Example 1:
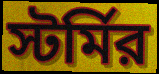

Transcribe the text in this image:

স্টর্মির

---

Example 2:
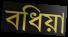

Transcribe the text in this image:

বধিয়া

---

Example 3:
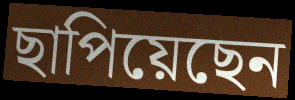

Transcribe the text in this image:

ছাপিয়েছেন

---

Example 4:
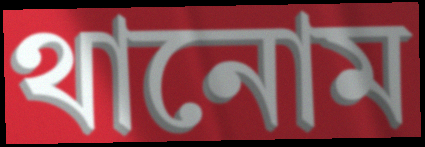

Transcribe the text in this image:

থানোম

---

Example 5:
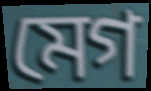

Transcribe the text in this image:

মেগ